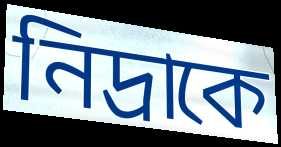
নিদ্রাকে